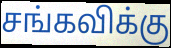
சங்கவிக்கு